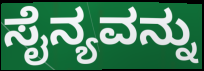
ಸೈನ್ಯವನ್ನು